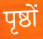
पृष्ठों